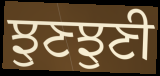
ਝੁਣਝੁਣੀ